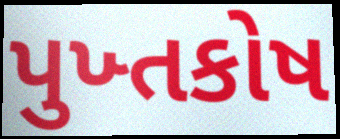
પુખ્તકોષ